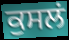
ਕੁਸਲਂ